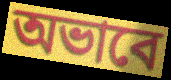
অভাবে